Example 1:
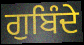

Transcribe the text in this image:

ਗੁਬਿੰਦੇ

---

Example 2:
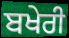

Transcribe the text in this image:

ਬਖੇਰੀ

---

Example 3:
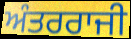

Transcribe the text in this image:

ਅੰਤਰਰਾਜੀ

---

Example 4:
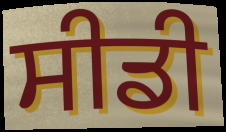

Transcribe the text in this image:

ਸੀਡੀ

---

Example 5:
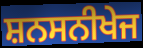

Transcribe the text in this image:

ਸ਼ਨਸਨੀਖੇਜ